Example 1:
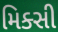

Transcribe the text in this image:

મિક્સી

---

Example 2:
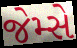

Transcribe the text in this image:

જેમ્સે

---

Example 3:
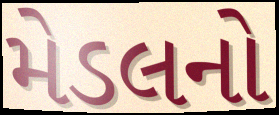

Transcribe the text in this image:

મેડલનો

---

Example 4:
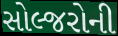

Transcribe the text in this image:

સોલ્જરોની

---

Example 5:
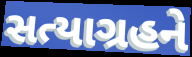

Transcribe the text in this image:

સત્યાગ્રહને